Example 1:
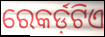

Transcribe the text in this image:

ରେକର୍ଡ଼ଟିଏ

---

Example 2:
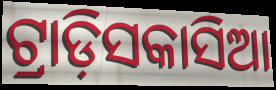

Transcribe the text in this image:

ଟ୍ରାଡ଼ିସକାସିଆ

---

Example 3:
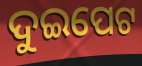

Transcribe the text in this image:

ଦୁଇପେଟ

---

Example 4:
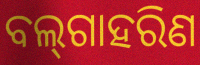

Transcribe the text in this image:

ବଲ୍‌ଗାହରିଣ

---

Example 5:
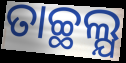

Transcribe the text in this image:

ତାଚ୍ଛଲ୍ଯ